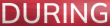
DURING